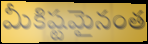
మీకిష్టమైనంత